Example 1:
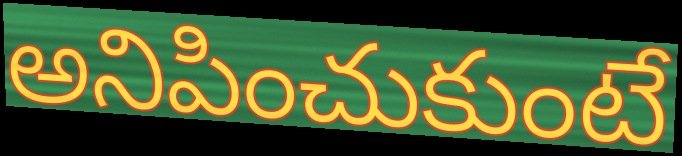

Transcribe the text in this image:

అనిపించుకుంటే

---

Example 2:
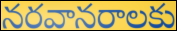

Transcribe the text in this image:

నరవానరాలకు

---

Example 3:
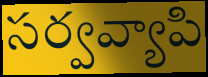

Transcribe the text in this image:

సర్వవ్యాపి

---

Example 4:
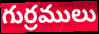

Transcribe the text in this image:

గుర్రములు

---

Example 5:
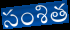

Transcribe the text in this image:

సంశిత